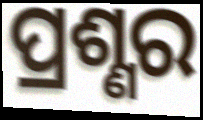
ପ୍ରଶ୍ଣର